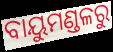
ବାୟୁମଣ୍ଡଳରୁ